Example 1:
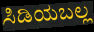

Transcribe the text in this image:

ಸಿಡಿಯಬಲ್ಲ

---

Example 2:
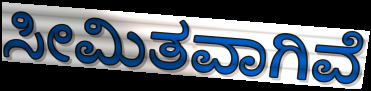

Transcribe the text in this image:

ಸೀಮಿತವಾಗಿವೆ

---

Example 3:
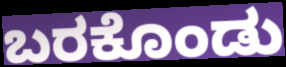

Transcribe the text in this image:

ಬರಕೊಂಡು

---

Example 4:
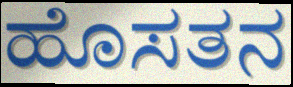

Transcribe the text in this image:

ಹೊಸತನ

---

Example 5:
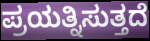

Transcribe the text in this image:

ಪ್ರಯತ್ನಿಸುತ್ತದೆ